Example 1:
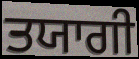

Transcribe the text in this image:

ਤਯਾਗੀ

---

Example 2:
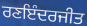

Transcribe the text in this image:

ਰਣਇੰਦਰਜੀਤ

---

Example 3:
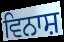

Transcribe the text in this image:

ਵਿਨਾਸ਼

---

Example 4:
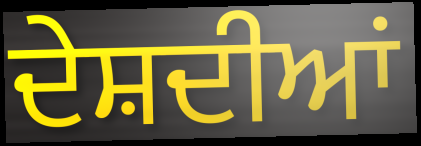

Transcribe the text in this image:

ਦੇਸ਼ਦੀਆਂ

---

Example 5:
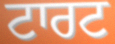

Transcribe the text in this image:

ਟਾਰਟ